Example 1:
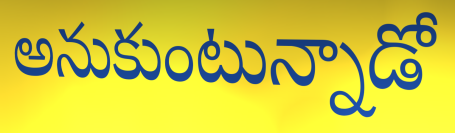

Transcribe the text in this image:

అనుకుంటున్నాడో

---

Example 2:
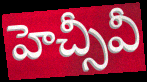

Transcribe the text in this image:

హెచ్సీవీ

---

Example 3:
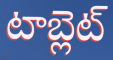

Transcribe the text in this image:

టాబ్లెట్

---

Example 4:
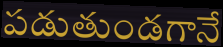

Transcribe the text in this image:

పడుతుండగానే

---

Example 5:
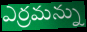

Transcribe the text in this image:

ఎర్రమన్ను